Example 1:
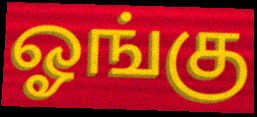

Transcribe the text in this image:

ஓங்கு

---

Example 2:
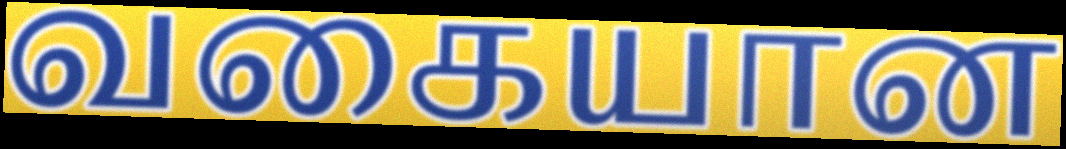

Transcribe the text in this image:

வகையான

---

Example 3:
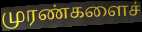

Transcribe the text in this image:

முரண்களைச்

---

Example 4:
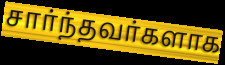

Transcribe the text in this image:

சார்ந்தவர்களாக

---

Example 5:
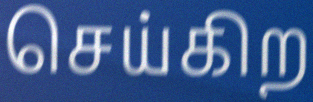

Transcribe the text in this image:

செய்கிற